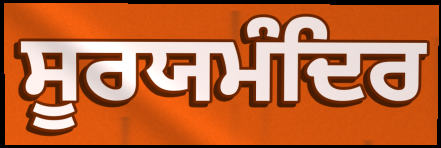
ਸੂਰਯਮੰਦਿਰ